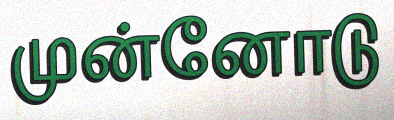
முன்னோடு